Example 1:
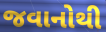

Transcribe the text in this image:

જવાનોથી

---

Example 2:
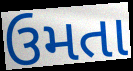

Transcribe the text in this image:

ઉમતા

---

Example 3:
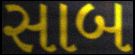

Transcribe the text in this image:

સાબ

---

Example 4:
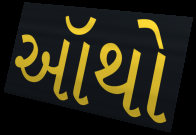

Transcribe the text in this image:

ઑથો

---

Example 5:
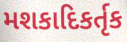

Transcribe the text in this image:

મશકાદિકર્તૃક